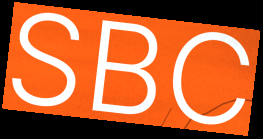
SBC